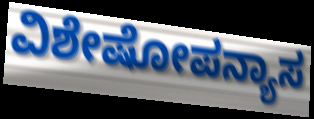
ವಿಶೇಷೋಪನ್ಯಾಸ